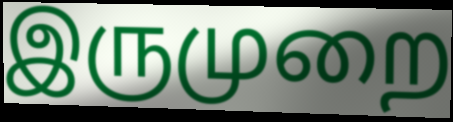
இருமுறை